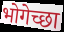
भोगेच्छा